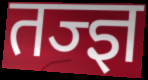
तज्‍ज्ञ